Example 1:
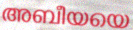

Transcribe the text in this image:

അബീയയെ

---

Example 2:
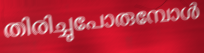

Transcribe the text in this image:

തിരിച്ചുപോരുമ്പോൾ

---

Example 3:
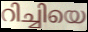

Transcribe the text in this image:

റിച്ചിയെ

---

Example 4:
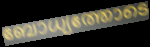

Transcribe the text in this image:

ബോധ്യത്തോടെ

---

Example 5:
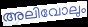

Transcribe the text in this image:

അലിവോലും